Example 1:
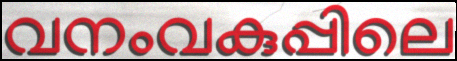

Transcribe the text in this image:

വനംവകുപ്പിലെ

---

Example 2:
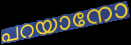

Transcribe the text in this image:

പറയാനോ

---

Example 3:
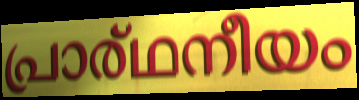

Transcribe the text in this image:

പ്രാര്ഥനീയം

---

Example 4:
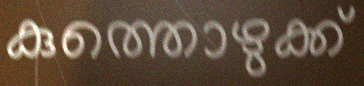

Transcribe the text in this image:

കുത്തൊഴുക്ക്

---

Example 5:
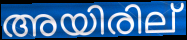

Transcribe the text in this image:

അയിരില്